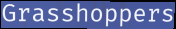
Grasshoppers